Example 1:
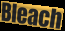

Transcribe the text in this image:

Bleach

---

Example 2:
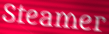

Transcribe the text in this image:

Steamer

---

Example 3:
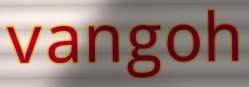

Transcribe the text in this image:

vangoh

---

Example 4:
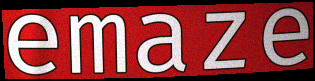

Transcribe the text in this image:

emaze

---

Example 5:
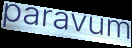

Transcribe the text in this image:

paravum